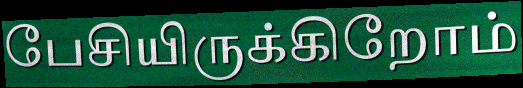
பேசியிருக்கிறோம்